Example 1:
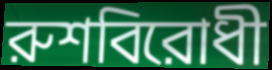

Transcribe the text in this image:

রুশবিরোধী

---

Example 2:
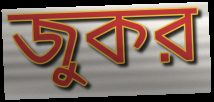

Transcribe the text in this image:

জুকর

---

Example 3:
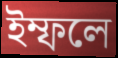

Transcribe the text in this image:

ইম্ফলে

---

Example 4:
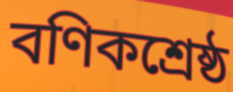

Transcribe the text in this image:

বণিকশ্রেষ্ঠ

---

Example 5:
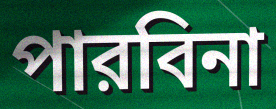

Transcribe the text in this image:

পারবিনা